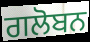
ਗਲੋਬਨ